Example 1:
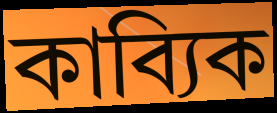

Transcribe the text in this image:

কাব্যিক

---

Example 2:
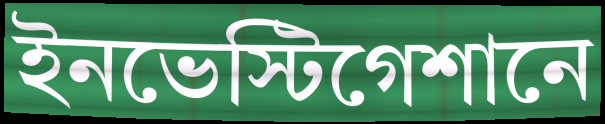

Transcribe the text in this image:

ইনভেস্টিগেশানে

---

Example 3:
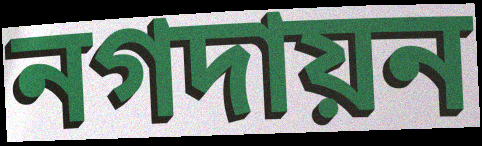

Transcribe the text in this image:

নগদায়ন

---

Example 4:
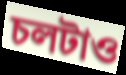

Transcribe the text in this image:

চলটাও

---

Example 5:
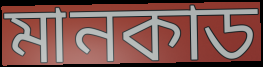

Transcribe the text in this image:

মানকাড